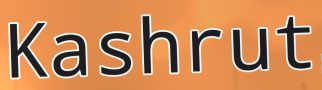
Kashrut